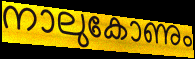
നാലുകോണും